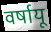
वर्षायू